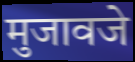
मुजावजे